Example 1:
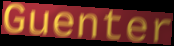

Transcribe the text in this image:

Guenter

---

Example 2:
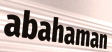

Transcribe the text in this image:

abahaman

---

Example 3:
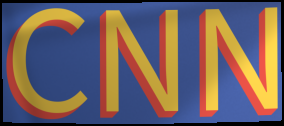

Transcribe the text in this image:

CNN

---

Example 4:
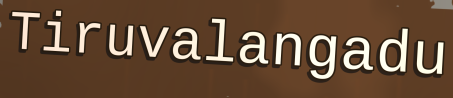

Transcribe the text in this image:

Tiruvalangadu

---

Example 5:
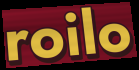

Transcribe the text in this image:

roilo